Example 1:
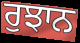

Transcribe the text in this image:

ਰੁਝਾਨ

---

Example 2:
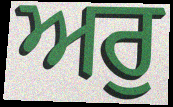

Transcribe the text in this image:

ਅਰੁ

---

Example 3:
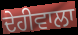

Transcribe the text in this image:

ਦੇਹੀਵਾਲਾ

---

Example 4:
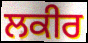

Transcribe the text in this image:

ਲਕੀਰ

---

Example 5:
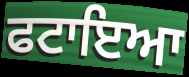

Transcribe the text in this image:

ਫਟਾਇਆ